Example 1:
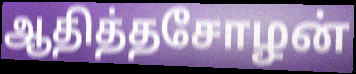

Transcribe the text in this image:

ஆதித்தசோழன்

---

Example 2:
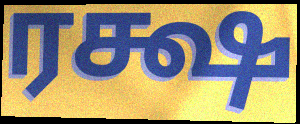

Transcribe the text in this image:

ரக்ஷ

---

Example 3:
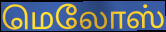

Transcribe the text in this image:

மெலோஸ்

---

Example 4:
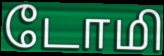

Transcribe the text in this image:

டோமி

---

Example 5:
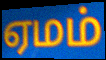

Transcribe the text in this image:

ஏமம்